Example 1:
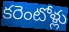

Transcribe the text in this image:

కరెంటోళ్లు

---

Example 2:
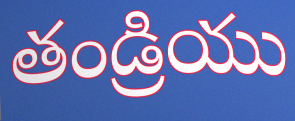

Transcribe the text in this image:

తండ్రియు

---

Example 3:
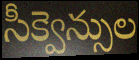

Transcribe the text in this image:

సీక్వెన్సుల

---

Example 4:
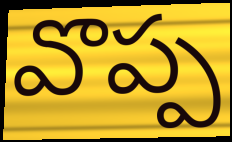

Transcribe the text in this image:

వొప్ప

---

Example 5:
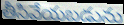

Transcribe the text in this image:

తీసివేయబడును